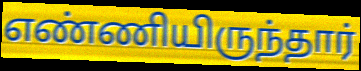
எண்ணியிருந்தார்